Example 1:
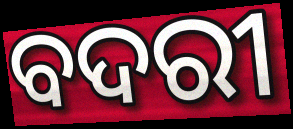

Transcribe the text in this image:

ବଦରୀ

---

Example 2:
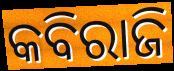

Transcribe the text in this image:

କବିରାଜି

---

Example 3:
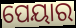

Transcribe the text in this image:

ପେୟାର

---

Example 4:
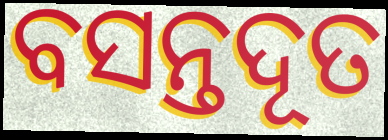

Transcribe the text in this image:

ବସନ୍ତଦୂତ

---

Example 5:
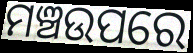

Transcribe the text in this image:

ମଞ୍ଚଉପରେ